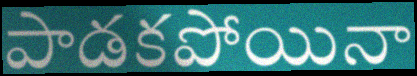
పాడకపోయినా